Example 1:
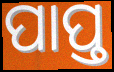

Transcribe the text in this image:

ପାପ୍ତ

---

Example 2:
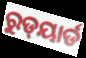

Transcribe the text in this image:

ରୁଡ୍‌ୟାର୍ଡ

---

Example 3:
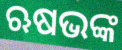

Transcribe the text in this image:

ଋଷଭଙ୍କ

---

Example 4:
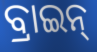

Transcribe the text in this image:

ବ୍ରାଇନ୍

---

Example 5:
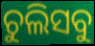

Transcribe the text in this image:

ଚୁଲିସବୁ